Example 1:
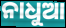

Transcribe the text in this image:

ନାଧୁଆ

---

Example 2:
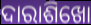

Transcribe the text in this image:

ଦାରାଶିଖୋ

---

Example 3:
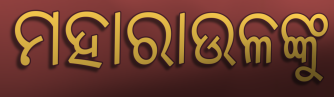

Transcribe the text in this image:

ମହାରାଉଳଙ୍କୁ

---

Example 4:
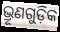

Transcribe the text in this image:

ଭ୍ରୂଣଗୁଡ଼ିକ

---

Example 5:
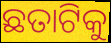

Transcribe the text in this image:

ଛତାଟିକୁ